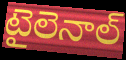
టైలెనాల్